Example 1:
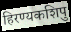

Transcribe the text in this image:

हिरण्यकशिपु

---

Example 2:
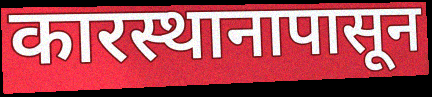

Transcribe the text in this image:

कारस्थानापासून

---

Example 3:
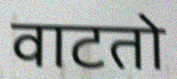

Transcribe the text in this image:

वाटतो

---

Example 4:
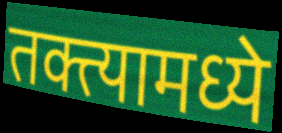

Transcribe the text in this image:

तक्त्यामध्ये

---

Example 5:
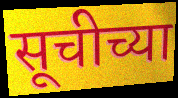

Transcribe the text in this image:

सूचीच्या